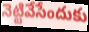
నెట్టివేసేందుకు